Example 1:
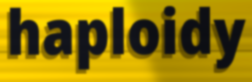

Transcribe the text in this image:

haploidy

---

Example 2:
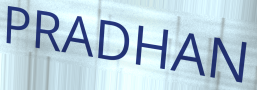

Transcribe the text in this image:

PRADHAN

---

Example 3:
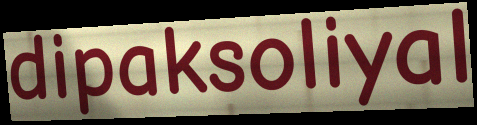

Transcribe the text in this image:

dipaksoliyal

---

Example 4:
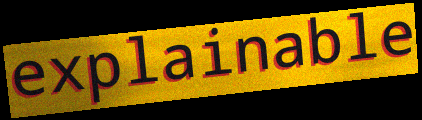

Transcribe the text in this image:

explainable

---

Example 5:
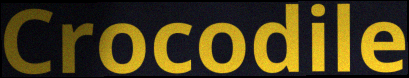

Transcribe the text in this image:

Crocodile